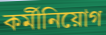
কর্মীনিয়োগ